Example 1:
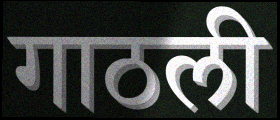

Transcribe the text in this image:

गाठली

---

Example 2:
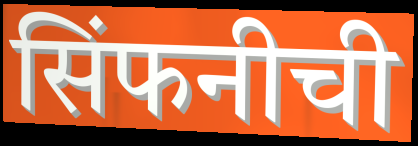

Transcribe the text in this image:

सिंफनीची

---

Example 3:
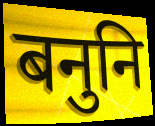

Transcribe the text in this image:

बनुनि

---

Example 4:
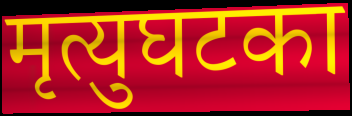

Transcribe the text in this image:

मृत्युघटका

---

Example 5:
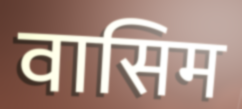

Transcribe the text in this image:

वासिम